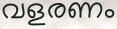
വളരണം